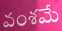
వంశమే